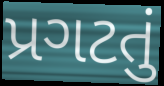
પ્રગટતું